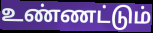
உண்ணட்டும்